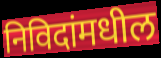
निविदांमधील